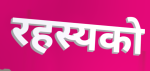
रहस्यको